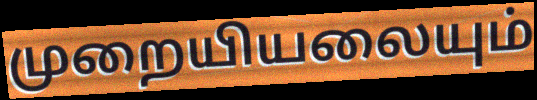
முறையியலையும்